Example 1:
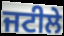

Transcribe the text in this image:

ਜਟੀਲੇ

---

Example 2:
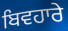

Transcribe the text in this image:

ਬਿਵਹਾਰੇ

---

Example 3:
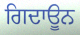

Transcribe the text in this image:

ਗਿਦਾਊਨ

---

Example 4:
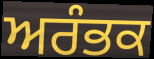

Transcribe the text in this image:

ਅਰੰਭਕ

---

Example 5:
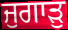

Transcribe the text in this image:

ਜੁਗਾੜੁ